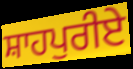
ਸ਼ਾਹਪੁਰੀਏ